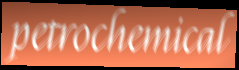
petrochemical